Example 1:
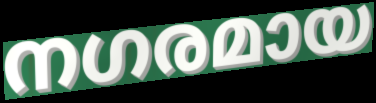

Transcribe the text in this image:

നഗരമായ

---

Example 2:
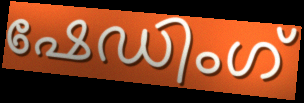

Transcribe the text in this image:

ഷേഡിംഗ്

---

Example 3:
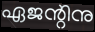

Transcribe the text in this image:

ഏജന്റിനു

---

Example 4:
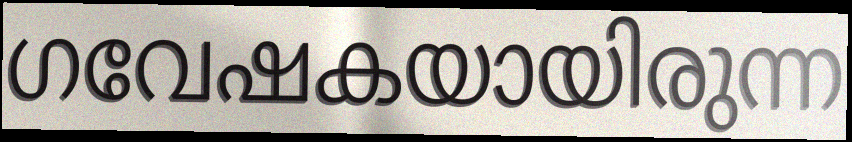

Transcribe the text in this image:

ഗവേഷകയായിരുന്ന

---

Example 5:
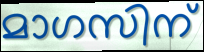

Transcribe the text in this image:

മാഗസിന്